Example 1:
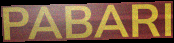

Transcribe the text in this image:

PABARI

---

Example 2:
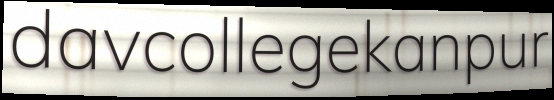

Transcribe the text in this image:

davcollegekanpur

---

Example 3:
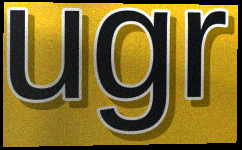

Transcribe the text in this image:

ugr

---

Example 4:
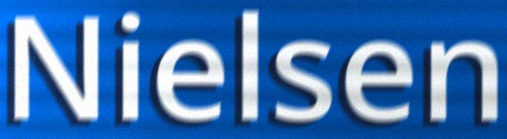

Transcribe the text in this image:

Nielsen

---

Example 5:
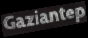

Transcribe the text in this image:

Gaziantep